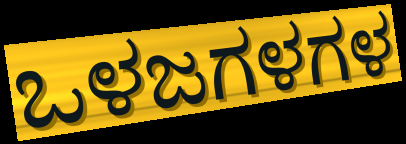
ಒಳಜಗಳಗಳ